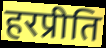
हरप्रीति